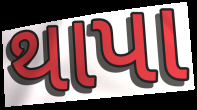
થાપા